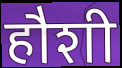
हौशी